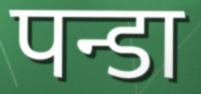
पन्डा